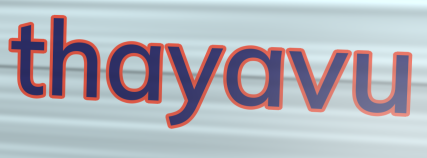
thayavu